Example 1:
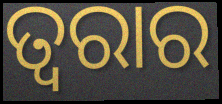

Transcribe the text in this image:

ତ୍ୱରାର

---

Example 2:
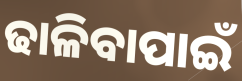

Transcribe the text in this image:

ଢାଳିବାପାଇଁ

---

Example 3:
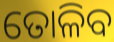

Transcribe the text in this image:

ତୋଳିବ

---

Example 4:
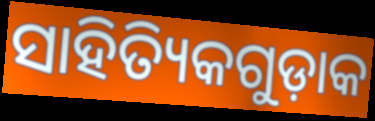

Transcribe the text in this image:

ସାହିତ୍ୟିକଗୁଡ଼ାକ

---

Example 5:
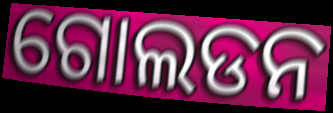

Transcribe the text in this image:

ଗୋଲଡନ